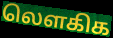
லௌகிக